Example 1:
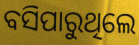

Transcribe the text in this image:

ବସିପାରୁଥିଲେ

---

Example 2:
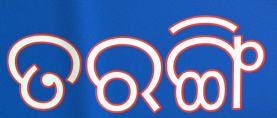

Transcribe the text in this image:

ତରଙ୍ଗି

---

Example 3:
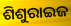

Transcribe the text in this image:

ଶିଶୁରାଇଜ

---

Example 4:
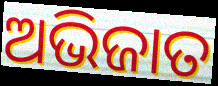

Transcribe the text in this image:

ଅଭିଜାତ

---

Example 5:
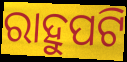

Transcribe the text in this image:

ରାହୁପଟି